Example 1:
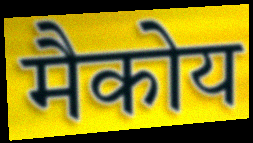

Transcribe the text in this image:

मैकोय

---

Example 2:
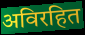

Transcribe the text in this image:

अविरहित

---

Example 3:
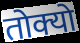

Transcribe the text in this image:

तोक्‍यो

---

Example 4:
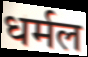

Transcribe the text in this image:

धर्मल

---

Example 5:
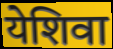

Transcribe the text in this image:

येशिवा